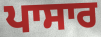
ਪਾਸਾਰ